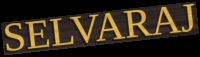
SELVARAJ